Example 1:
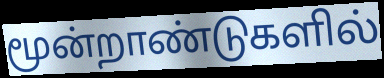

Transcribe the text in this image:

மூன்றாண்டுகளில்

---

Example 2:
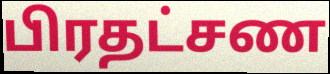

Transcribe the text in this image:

பிரதட்சண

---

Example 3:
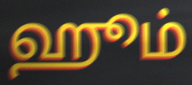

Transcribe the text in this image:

ஹூம்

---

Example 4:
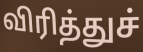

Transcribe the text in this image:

விரித்துச்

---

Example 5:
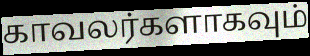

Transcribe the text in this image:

காவலர்களாகவும்